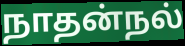
நாதன்நல்